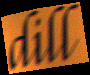
dill